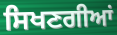
ਸਿਖਣਗੀਆਂ